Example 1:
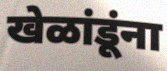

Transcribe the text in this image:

खेळांडूंना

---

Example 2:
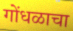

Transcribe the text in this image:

गोंधळाचा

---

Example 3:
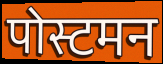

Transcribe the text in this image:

पोस्टमन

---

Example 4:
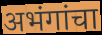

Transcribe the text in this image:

अभंगांचा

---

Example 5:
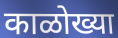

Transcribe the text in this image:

काळोख्या